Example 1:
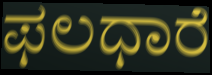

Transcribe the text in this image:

ಫಲಧಾರೆ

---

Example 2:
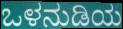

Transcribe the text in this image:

ಒಳನುಡಿಯ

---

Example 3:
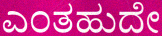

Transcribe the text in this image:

ಎಂತಹುದೇ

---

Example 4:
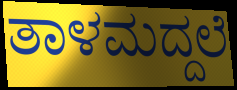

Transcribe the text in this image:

ತಾಳಮದ್ದಲೆ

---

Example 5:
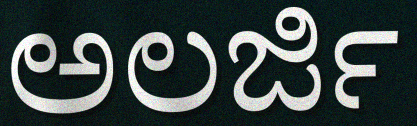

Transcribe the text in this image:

ಅಲರ್ಜಿ